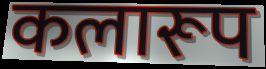
कलारूप